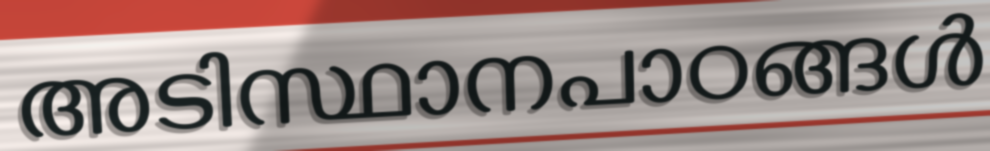
അടിസ്ഥാനപാഠങ്ങൾ